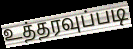
உத்தரவுப்படி